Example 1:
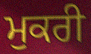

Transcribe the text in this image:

ਮੁਕਰੀ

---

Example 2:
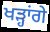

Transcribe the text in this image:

ਖੜ੍ਹਾਂਗੇ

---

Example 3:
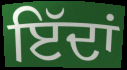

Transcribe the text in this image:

ਇੱਦਾਂ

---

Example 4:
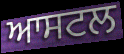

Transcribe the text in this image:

ਆਸਟਲ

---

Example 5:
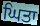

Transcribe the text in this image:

ਘਿਤਾ